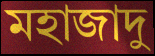
মহাজাদু